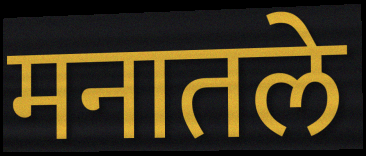
मनातले